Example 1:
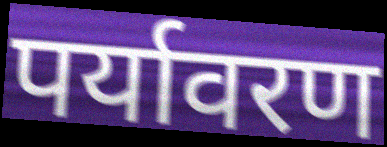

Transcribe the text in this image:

पर्यावरण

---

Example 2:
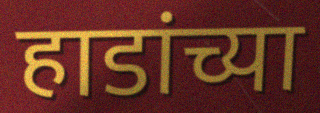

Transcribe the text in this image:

हाडांच्या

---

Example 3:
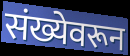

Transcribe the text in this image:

संख्येवरून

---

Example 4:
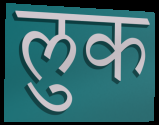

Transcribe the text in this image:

लुक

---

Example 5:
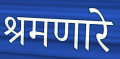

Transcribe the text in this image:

श्रमणारे